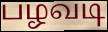
பழவடி